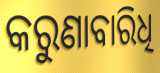
କରୁଣାବାରିଧି